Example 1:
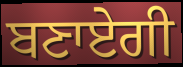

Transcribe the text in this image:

ਬਣਾਏਗੀ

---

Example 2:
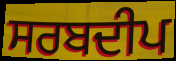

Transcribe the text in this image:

ਸਰਬਦੀਪ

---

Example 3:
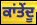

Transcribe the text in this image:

ਕਾਂਤੇਂਦੂ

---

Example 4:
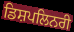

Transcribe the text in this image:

ਡਿਸ਼ਪਲਿਨਰੀ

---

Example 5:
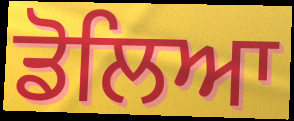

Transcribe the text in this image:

ਡੋਲਿਆ